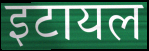
इटायल